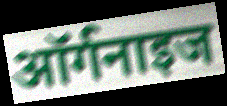
ऑर्गनाइज